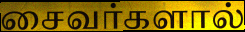
சைவர்களால்